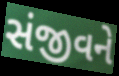
સંજીવને